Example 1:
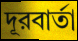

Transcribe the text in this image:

দূরবার্তা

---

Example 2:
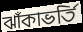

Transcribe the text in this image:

ঝাঁকাভর্তি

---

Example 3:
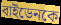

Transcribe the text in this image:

বাইডেনকে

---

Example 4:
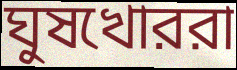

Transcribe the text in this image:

ঘুষখোররা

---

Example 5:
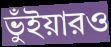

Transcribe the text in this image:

ভুঁইয়ারও